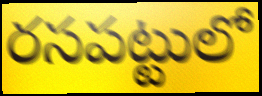
రసపట్టులో